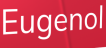
Eugenol